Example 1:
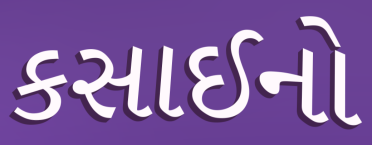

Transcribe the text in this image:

કસાઈનો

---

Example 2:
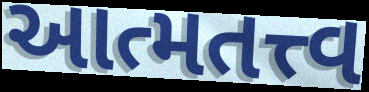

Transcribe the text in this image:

આત્મતત્ત્વ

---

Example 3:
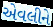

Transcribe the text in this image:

એવલીને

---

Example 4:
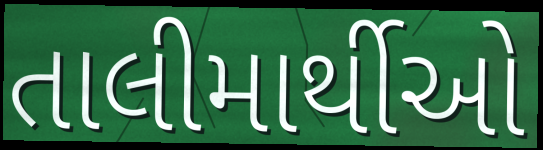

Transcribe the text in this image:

તાલીમાર્થીઓ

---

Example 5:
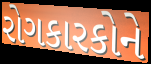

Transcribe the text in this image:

રોગકારકોને